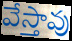
వేస్తావు